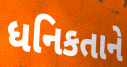
ધનિકતાને